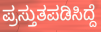
ಪ್ರಸ್ತುತಪಡಿಸಿದ್ದೆ